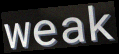
weak